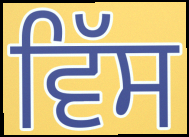
ਵਿੱਸ